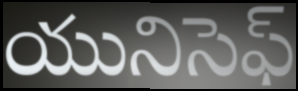
యునిసెఫ్